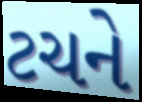
ટચને